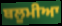
ਬਲੂਮੀਆ